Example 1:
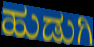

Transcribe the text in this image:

ಹುಡುಗಿ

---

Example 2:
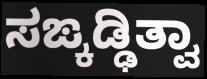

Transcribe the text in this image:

ಸಙ್ಕಡ್ಢಿತ್ವಾ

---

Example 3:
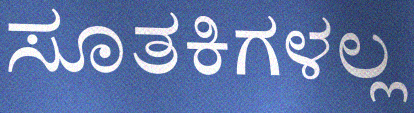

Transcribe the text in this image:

ಸೂತಕಿಗಳಲ್ಲ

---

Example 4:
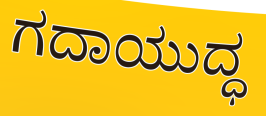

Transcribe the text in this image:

ಗದಾಯುದ್ಧ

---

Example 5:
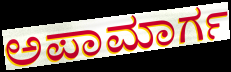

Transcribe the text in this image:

ಅಪಾಮಾರ್ಗ